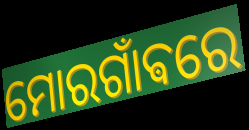
ମୋରଗାଁଵରେ